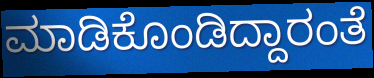
ಮಾಡಿಕೊಂಡಿದ್ದಾರಂತೆ